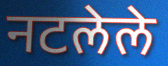
नटलेले